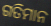
ଗତିମାନ